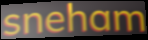
sneham